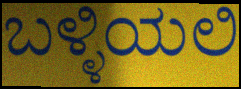
ಬಳ್ಳಿಯಲಿ